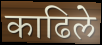
काढिले